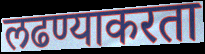
लढण्याकरता